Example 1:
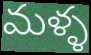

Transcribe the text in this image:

మళ్ళ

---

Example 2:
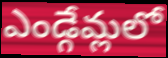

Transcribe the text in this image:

ఎండ్గేమ్లలో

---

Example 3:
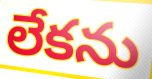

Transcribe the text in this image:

లేకను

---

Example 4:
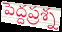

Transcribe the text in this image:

పెద్దప్రశ్న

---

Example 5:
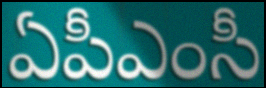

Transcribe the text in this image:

ఏపీఎంసీ